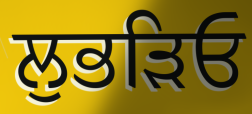
ਲੁਭੜਿਓ